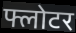
फ्लोटर